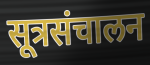
सूत्रसंचालन